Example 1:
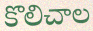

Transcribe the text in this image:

కొలిచాల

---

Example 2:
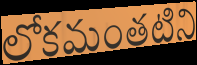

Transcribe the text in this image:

లోకమంతటిని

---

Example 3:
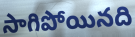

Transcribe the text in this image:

సాగిపోయినది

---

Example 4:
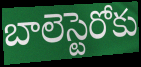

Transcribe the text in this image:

బాలెస్టెరోకు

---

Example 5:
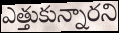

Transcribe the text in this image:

ఎత్తుకున్నారని